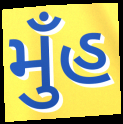
મુઁહ